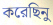
করেছিনু